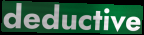
deductive